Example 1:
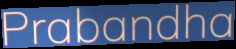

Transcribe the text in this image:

Prabandha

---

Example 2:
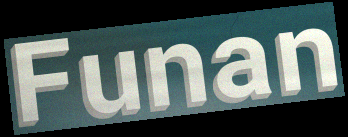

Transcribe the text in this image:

Funan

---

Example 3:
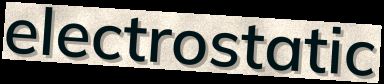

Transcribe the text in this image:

electrostatic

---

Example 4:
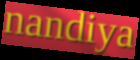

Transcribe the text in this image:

nandiya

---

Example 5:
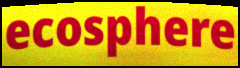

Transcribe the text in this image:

ecosphere